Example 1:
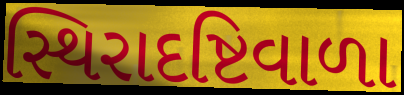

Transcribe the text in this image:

સ્થિરાદષ્ટિવાળા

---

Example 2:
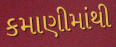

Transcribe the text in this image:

કમાણીમાંથી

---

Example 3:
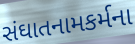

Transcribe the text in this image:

સંઘાતનામકર્મના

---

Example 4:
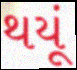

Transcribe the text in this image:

થયૂં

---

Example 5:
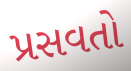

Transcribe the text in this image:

પ્રસવતો